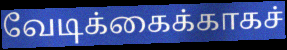
வேடிக்கைக்காகச்